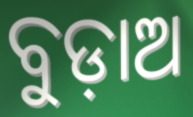
ବୁଡ଼ାଅ